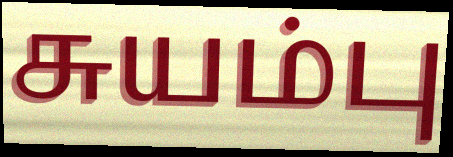
சுயம்பு